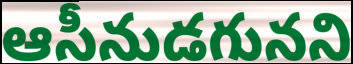
ఆసీనుడగునని